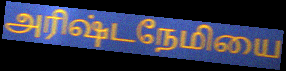
அரிஷ்டநேமியை